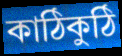
কাঠিকুঠি